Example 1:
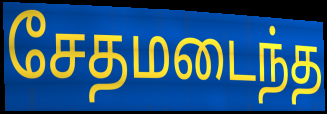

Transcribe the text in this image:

சேதமடைந்த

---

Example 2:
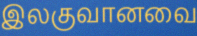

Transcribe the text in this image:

இலகுவானவை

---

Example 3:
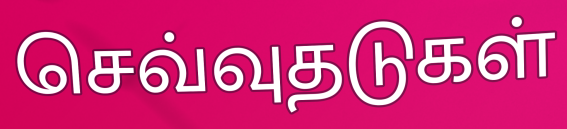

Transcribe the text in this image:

செவ்வுதடுகள்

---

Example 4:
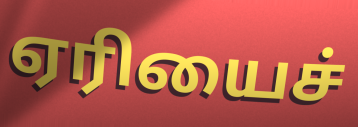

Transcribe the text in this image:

ஏரியைச்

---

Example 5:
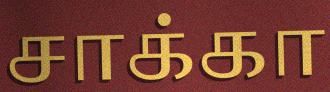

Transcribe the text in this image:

சாக்கா